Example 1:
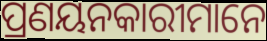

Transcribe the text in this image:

ପ୍ରଣୟନକାରୀମାନେ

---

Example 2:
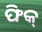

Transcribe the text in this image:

ଫିକ୍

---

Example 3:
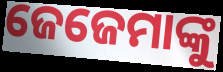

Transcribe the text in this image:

ଜେଜେମାଙ୍କୁ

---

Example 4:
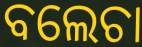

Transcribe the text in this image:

ବଲେଚା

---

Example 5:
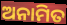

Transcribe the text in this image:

ଅନାମିତ